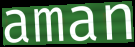
aman